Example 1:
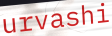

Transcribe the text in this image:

urvashi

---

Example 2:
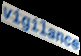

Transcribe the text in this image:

vigilance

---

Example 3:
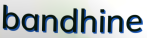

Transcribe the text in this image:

bandhine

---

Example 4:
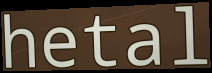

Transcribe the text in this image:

hetal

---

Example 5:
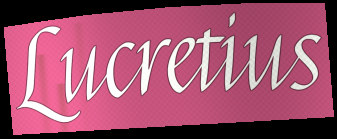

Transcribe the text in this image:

Lucretius